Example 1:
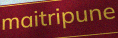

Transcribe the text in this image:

maitripune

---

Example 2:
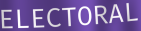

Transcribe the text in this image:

ELECTORAL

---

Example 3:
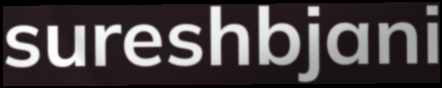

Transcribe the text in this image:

sureshbjani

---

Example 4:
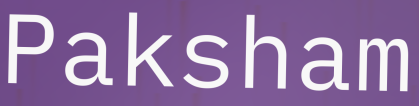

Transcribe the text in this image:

Paksham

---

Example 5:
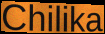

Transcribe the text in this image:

Chilika